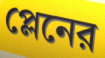
প্লেনের